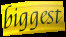
biggest